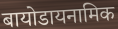
बायोडायनामिक